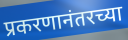
प्रकरणानंतरच्या